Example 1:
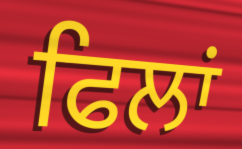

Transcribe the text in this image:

ਫਿਲਾਂ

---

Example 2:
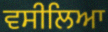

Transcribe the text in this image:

ਵਸੀਲਿਆ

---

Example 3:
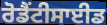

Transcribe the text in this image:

ਰੋਡੈਂਟੀਸਾਈਡ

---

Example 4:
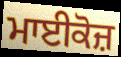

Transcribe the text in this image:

ਮਾਈਕੋਜ਼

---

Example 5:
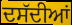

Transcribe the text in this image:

ਦਸੱਦੀਆਂ